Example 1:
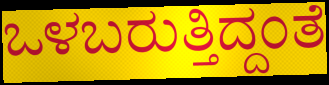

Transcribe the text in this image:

ಒಳಬರುತ್ತಿದ್ದಂತೆ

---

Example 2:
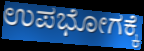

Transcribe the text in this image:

ಉಪಭೋಗಕ್ಕೆ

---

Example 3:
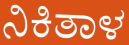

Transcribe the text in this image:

ನಿಕಿತಾಳ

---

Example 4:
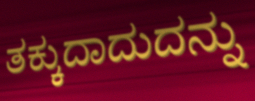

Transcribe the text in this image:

ತಕ್ಕುದಾದುದನ್ನು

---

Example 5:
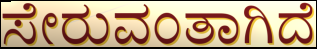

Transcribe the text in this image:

ಸೇರುವಂತಾಗಿದೆ